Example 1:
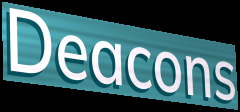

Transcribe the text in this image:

Deacons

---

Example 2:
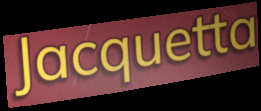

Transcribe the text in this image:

Jacquetta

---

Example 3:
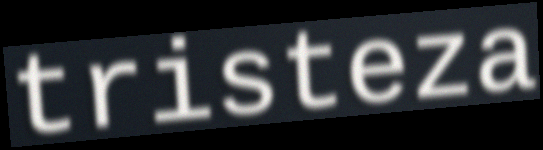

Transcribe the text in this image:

tristeza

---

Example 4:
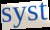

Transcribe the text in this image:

syst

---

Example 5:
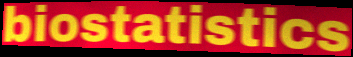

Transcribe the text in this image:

biostatistics